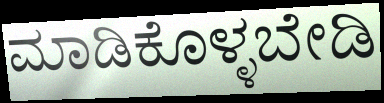
ಮಾಡಿಕೊಳ್ಳಬೇಡಿ